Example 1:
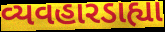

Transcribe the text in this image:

વ્યવહારડાહ્યા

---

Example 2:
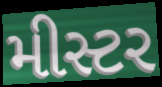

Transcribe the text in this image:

મીસ્ટર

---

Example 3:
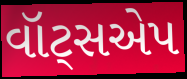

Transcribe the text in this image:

વૉટ્સએપ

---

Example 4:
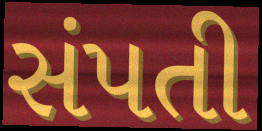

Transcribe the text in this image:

સંપતી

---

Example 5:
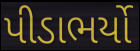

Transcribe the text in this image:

પીડાભર્યો